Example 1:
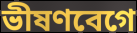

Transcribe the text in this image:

ভীষণবেগে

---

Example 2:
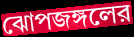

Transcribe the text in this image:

ঝোপজঙ্গলের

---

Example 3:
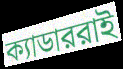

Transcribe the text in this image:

ক্যাডাররাই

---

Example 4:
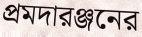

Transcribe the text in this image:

প্রমদারঞ্জনের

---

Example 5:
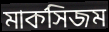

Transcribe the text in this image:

মার্কসিজম